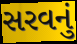
સરવનું